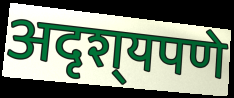
अदृश्यपणे